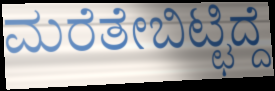
ಮರೆತೇಬಿಟ್ಟಿದ್ದೆ